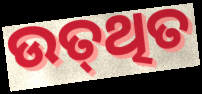
ଉତ୍‍ଥିତ